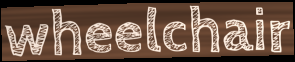
wheelchair